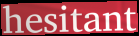
hesitant